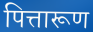
पित्तारूण